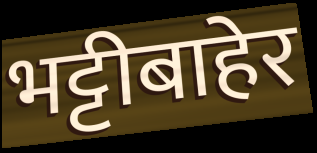
भट्टीबाहेर